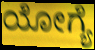
ಯೋಗ್ಯೆ